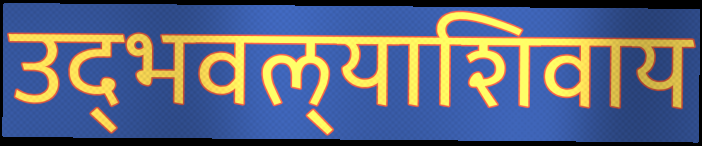
उद्भवल्याशिवाय